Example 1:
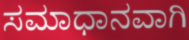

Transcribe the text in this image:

ಸಮಾಧಾನವಾಗಿ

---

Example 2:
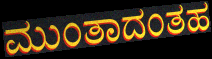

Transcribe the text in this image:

ಮುಂತಾದಂತಹ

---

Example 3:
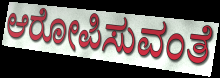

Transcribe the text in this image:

ಆರೋಪಿಸುವಂತೆ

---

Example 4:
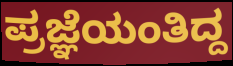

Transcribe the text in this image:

ಪ್ರಜ್ಞೆಯಂತಿದ್ದ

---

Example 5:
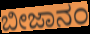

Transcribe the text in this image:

ಬೀಜಾನಂ